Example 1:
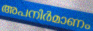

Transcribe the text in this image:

അപനിർമാണം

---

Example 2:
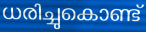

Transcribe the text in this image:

ധരിച്ചുകൊണ്ട്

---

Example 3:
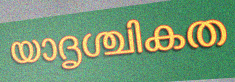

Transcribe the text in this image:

യാദൃശ്ചികത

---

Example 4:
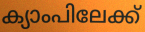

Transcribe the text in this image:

ക്യാംപിലേക്ക്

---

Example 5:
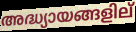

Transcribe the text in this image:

അദ്ധ്യായങ്ങളില്